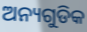
ଅନ୍ୟଗୁଡିକ